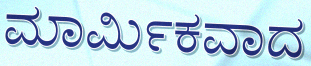
ಮಾರ್ಮಿಕವಾದ